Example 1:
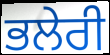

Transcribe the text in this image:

ਭਲੇਰੀ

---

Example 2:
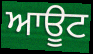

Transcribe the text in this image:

ਆਊਟ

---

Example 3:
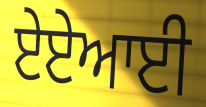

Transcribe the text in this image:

ਏਏਆਈ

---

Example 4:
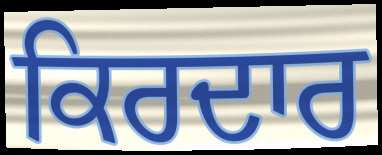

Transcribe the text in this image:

ਕਿਰਦਾਰ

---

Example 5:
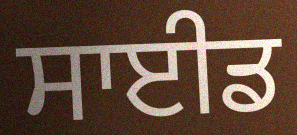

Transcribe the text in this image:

ਸਾਈਡ